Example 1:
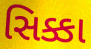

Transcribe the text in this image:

સિક્કા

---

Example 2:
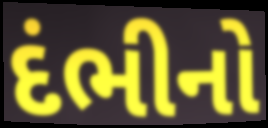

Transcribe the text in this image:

દંભીનો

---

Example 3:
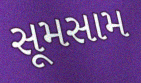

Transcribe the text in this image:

સૂમસામ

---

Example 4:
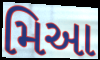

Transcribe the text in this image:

મિઆ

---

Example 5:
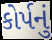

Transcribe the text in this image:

કોર્પનું